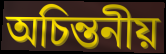
অচিন্তনীয়